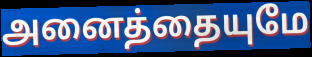
அனைத்தையுமே